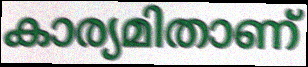
കാര്യമിതാണ്